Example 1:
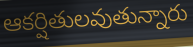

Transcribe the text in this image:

ఆకర్షితులవుతున్నారు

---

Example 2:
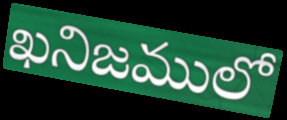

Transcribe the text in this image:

ఖనిజములో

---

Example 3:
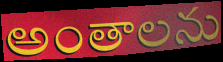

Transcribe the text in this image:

అంతాలను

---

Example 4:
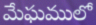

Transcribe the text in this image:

మేఘములో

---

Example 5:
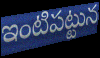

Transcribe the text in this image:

ఇంటిపట్టున